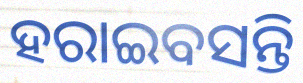
ହରାଇବସନ୍ତି